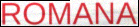
ROMANA